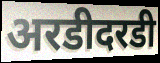
अरडीदरडी